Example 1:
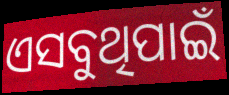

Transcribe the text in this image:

ଏସବୁଥିପାଇଁ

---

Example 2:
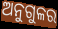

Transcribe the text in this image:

ଅନୁଗୁଳର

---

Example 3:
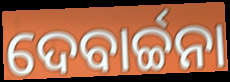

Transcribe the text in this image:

ଦେବାର୍ଚ୍ଚନା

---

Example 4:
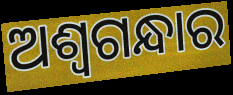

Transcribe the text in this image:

ଅଶ୍ୱଗନ୍ଧାର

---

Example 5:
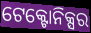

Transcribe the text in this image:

ଟେକ୍ଟୋନିକ୍ସର